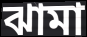
ঝামা